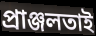
প্রাঞ্জলতাই